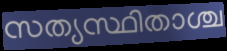
സത്യസ്ഥിതാശ്ച